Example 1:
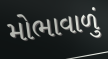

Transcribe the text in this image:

મોભાવાળું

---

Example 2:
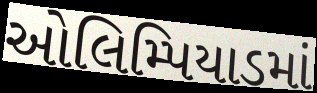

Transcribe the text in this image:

ઓલિમ્પિયાડમાં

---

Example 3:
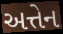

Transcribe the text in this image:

અત્તેન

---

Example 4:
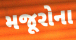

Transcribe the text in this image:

મજૂરોના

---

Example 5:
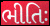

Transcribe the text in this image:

ભીતિઃ